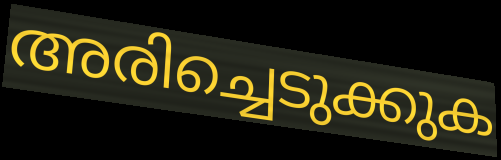
അരിച്ചെടുക്കുക